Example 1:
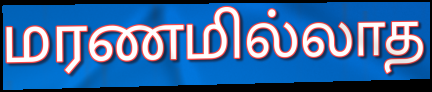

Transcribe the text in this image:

மரணமில்லாத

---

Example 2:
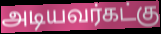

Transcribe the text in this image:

அடியவர்கட்கு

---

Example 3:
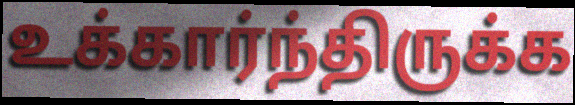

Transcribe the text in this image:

உக்கார்ந்திருக்க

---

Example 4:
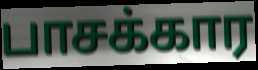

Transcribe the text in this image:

பாசக்கார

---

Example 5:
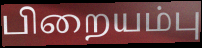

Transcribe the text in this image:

பிறையம்பு